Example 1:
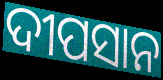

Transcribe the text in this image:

ଦୀପସାନ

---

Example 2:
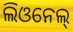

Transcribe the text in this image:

ଲିଓନେଲ୍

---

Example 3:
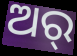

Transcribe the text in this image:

ଅର୍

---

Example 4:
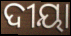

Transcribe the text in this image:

ଦୀୟା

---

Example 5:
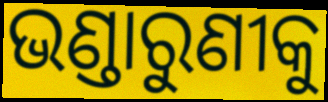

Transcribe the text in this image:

ଭଣ୍ଡାରୁଣୀକୁ